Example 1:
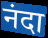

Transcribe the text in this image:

नंदा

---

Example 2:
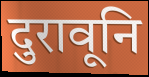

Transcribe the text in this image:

दुरावूनि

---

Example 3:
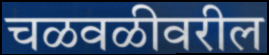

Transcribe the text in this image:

चळवळीवरील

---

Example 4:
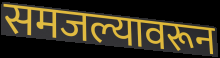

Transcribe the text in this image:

समजल्यावरून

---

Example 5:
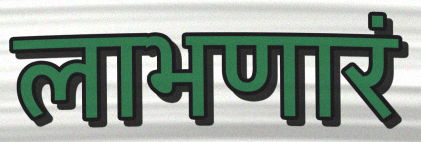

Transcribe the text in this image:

लाभणारं